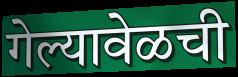
गेल्यावेळची